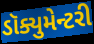
ડૉક્યુમેન્ટરી